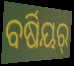
ବର୍ଷିୟର୍